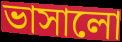
ভাসালো